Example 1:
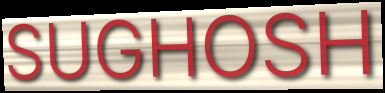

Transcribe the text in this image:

SUGHOSH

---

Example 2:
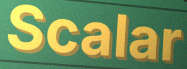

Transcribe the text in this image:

Scalar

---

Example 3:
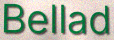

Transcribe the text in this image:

Bellad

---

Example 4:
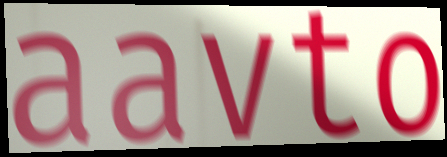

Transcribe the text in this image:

aavto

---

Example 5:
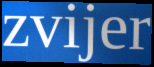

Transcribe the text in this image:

zvijer